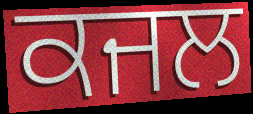
ਕਜਲ